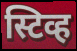
स्टिव्ह